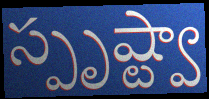
స్పృష్ట్వా